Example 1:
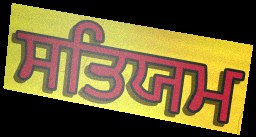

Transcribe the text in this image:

ਸਤਿਯਮ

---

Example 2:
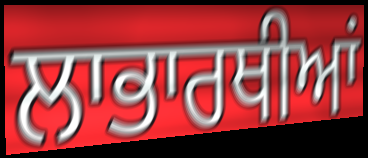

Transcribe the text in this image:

ਲਾਭਾਰਥੀਆਂ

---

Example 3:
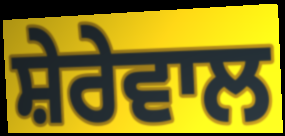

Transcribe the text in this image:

ਸ਼ੇਰੇਵਾਲ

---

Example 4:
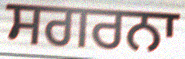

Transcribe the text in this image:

ਸਗਰਨਾ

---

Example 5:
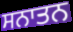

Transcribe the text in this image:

ਸਨਾਤਨ